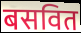
बसवित